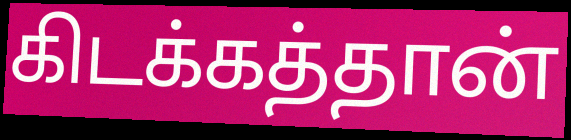
கிடக்கத்தான்